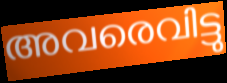
അവരെവിട്ടു